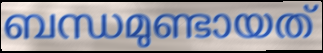
ബന്ധമുണ്ടായത്